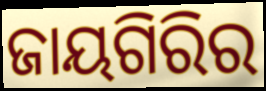
ଜାୟଗିରିର